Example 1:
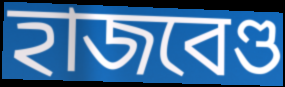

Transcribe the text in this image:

হাজবেণ্ড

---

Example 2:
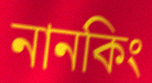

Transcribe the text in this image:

নানকিং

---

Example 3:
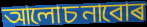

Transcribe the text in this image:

আলোচনাবোৰ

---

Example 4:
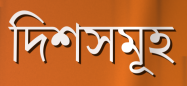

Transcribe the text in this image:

দিশসমূহ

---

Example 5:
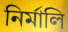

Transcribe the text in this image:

নিৰ্মালি